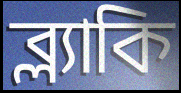
ব্ল্যাকি